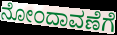
ನೋಂದಾವಣೆಗೆ